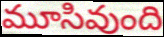
మూసివుంది